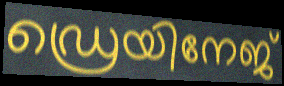
ഡ്രെയിനേജ്